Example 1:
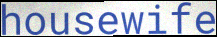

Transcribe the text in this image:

housewife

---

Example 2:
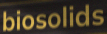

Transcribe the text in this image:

biosolids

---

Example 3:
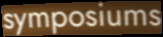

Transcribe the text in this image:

symposiums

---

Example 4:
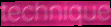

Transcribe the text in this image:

technique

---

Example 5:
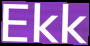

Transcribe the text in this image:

Ekk